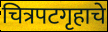
चित्रपटगृहाचे